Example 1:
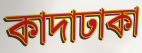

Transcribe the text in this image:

কাদাঢাকা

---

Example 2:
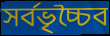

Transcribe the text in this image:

সর্বভৃচ্চৈব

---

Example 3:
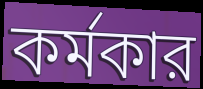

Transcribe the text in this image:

কর্মকার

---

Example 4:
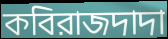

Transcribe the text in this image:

কবিরাজদাদা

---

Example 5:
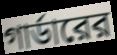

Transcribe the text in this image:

গার্ডারের